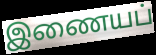
இணையப்